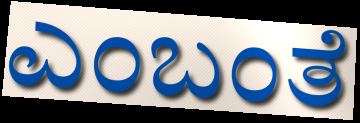
ಎಂಬಂತೆ